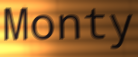
Monty